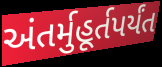
અંતર્મુહૂર્તપર્યંત